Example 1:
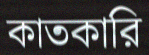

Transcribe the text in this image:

কাতকারি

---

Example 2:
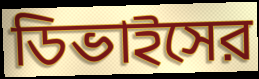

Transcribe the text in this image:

ডিভাইসের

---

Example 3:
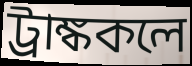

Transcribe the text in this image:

ট্রাঙ্ককলে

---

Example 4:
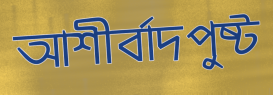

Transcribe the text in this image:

আশীর্বাদপুষ্ট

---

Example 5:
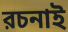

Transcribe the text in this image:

রচনাই